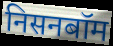
निसनबॉम